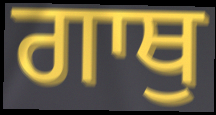
ਗਾਥੁ